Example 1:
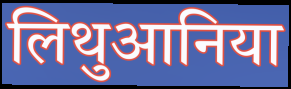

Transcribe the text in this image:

लिथुआनिया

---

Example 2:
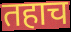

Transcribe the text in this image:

तहाच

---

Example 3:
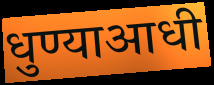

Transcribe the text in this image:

धुण्याआधी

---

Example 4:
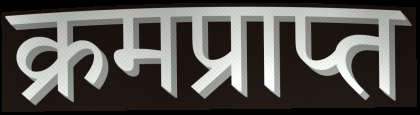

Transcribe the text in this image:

क्रमप्राप्त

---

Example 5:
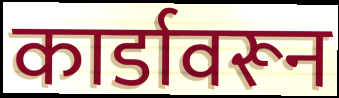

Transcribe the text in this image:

कार्डावरून